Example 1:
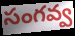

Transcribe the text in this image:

సంగవ్వ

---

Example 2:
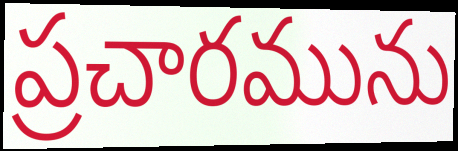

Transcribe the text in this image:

ప్రచారమును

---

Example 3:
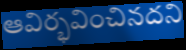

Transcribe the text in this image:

ఆవిర్భవించినదని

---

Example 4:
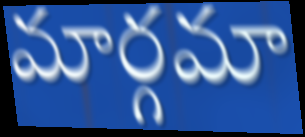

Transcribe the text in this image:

మార్గమా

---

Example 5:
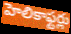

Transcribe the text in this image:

హెలికాఫ్టర్లు